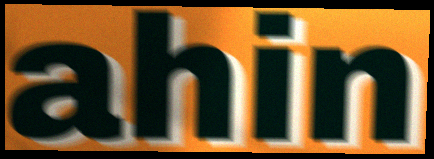
ahin